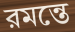
রমন্তে